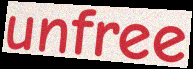
unfree